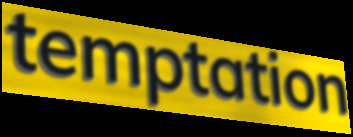
temptation